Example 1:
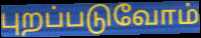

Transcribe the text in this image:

புறப்படுவோம்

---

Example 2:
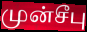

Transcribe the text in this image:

முன்சீபு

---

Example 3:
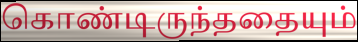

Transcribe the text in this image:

கொண்டிருந்ததையும்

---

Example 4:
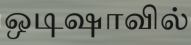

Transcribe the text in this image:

ஒடிஷாவில்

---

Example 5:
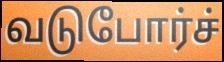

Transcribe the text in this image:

வடுபோர்ச்